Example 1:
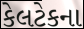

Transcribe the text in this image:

કેલટેકના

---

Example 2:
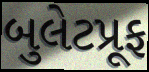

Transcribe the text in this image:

બુલેટપ્રૂફ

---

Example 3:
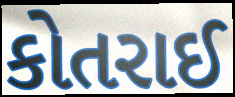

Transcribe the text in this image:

કોતરાઈ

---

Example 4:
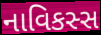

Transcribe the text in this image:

નાવિકસ્સ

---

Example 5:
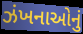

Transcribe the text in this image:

ઝંખનાઓનું